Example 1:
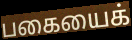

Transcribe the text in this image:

பகையைக்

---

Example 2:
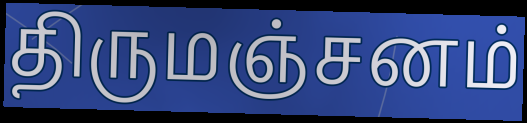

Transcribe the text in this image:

திருமஞ்சனம்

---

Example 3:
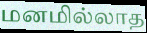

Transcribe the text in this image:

மனமில்லாத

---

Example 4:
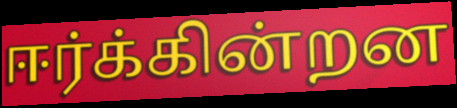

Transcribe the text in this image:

ஈர்க்கின்றன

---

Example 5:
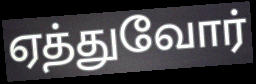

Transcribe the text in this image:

ஏத்துவோர்